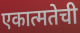
एकात्मतेची